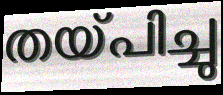
തയ്പിച്ചു